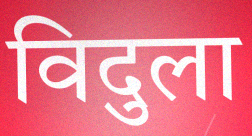
विदुला